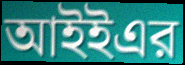
আইইএর